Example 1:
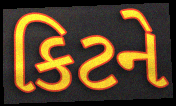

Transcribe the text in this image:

કિટને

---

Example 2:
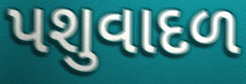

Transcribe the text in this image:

પશુવાદળ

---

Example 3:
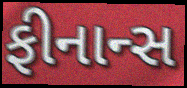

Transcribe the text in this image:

ફીનાન્સ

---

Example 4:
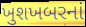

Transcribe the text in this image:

ખુશખબરનાં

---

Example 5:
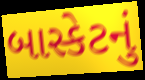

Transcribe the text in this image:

બાસ્કેટનું